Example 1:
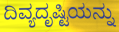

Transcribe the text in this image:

ದಿವ್ಯದೃಷ್ಟಿಯನ್ನು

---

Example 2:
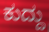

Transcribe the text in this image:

ಕುದ್ದು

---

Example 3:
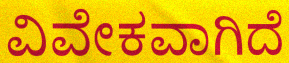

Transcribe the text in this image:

ವಿವೇಕವಾಗಿದೆ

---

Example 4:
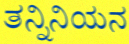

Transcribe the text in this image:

ತನ್ನಿನಿಯನ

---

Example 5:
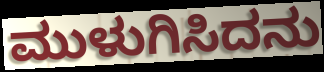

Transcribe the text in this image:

ಮುಳುಗಿಸಿದನು